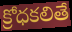
క్రోధకలితే